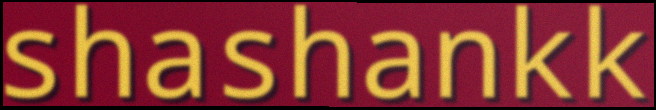
shashankk